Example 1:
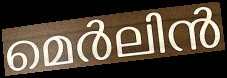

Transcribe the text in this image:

മെർലിൻ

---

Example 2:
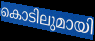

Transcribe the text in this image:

കൊടിലുമായി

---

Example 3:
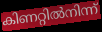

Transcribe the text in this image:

കിണറ്റിൽനിന്ന്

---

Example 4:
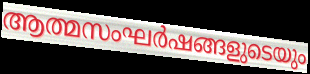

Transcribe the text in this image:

ആത്മസംഘർഷങ്ങളുടെയും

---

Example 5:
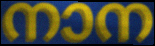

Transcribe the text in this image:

നാന